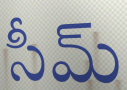
సీమ్